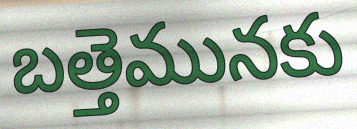
బత్తెమునకు